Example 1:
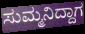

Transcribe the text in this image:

ಸುಮ್ಮನಿದ್ದಾಗ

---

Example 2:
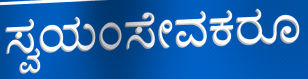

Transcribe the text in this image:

ಸ್ವಯಂಸೇವಕರೂ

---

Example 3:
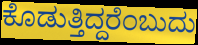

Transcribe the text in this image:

ಕೊಡುತ್ತಿದ್ದರೆಂಬುದು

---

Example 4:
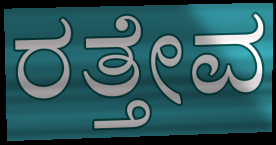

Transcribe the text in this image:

ರತ್ತೇವ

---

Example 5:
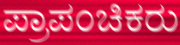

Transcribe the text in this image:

ಪ್ರಾಪಂಚಿಕರು